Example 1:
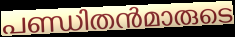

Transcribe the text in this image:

പണ്ഡിതൻമാരുടെ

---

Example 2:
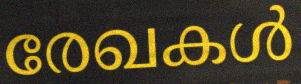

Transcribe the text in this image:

രേഖകൾ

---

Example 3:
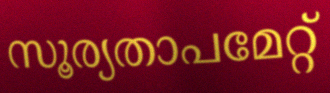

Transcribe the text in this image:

സൂര്യതാപമേറ്റ്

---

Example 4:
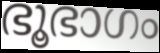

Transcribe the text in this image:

ഭൂഭാഗം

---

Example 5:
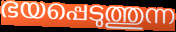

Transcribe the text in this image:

ഭയപ്പെടുത്തുന്ന